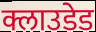
क्लाउडेड